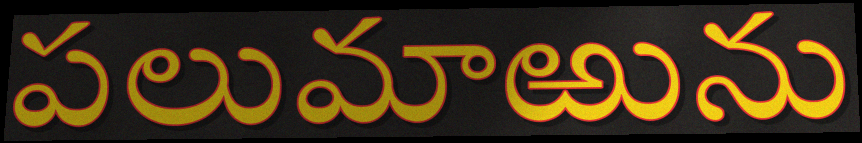
పలుమాఱును